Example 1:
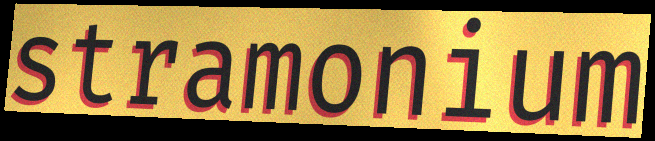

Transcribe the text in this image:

stramonium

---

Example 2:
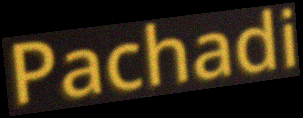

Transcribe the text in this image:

Pachadi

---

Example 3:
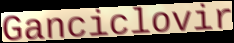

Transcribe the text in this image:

Ganciclovir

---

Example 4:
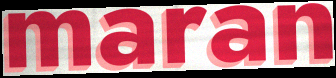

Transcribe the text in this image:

maran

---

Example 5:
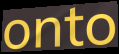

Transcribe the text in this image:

onto